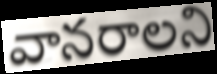
వానరాలని